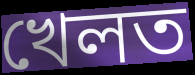
খেলত